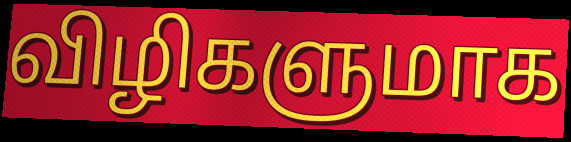
விழிகளுமாக